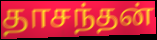
தாசந்தன்